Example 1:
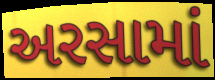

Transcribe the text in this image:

અરસામાં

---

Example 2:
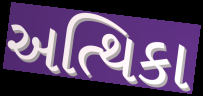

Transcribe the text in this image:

અત્થિકા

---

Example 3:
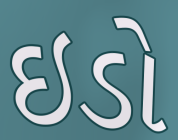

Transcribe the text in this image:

ઇડો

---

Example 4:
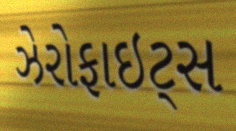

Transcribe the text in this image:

ઝેરોફાઇટ્સ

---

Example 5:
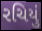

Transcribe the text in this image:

રચિયું